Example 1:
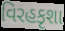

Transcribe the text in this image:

વિરહકૃશા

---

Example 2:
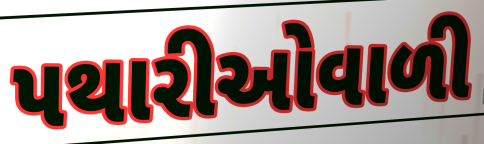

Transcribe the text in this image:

પથારીઓવાળી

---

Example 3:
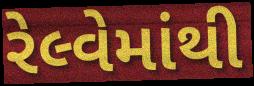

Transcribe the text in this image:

રેલ્વેમાંથી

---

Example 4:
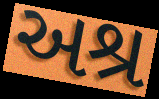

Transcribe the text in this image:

અશ્ર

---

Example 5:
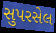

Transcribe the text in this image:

સુપરસેલ